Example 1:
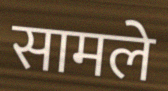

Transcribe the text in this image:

सामले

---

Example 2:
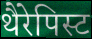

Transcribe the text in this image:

थैरेपिस्ट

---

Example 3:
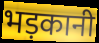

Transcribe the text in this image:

भड़कानी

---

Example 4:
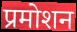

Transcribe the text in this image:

प्रमोशन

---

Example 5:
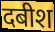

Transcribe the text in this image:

दबीश